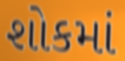
શોકમાં